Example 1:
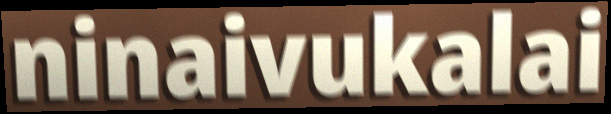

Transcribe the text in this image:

ninaivukalai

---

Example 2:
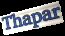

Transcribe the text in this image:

Thapar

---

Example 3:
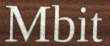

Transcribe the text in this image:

Mbit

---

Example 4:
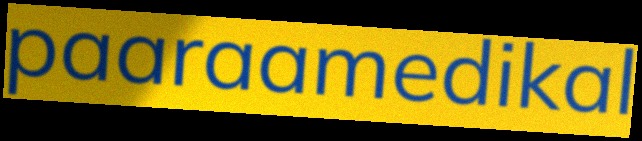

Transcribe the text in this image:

paaraamedikal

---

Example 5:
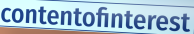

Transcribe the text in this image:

contentofinterest